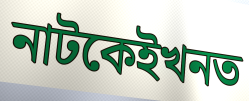
নাটকেইখনত